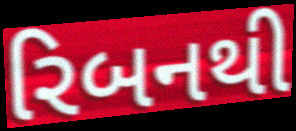
રિબનથી